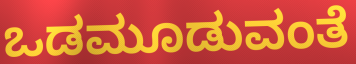
ಒಡಮೂಡುವಂತೆ